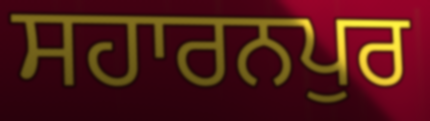
ਸਹਾਰਨਪੁਰ